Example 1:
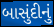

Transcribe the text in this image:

બાસુંદીનું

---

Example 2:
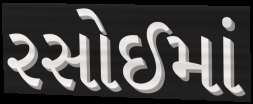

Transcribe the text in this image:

રસોઈમાં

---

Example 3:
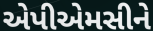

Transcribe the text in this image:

એપીએમસીને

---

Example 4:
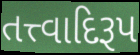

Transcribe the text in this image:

તત્ત્વાદિરૂપ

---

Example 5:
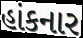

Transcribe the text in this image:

હાંકનાર